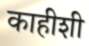
काहीशी